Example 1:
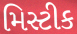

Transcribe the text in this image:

મિસ્ટીક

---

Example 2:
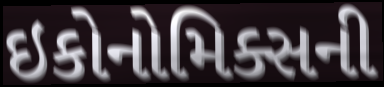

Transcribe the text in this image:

ઇકોનોમિક્સની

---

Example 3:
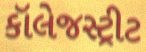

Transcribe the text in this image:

કૉલેજસ્ટ્રીટ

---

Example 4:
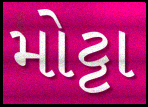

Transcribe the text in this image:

મોટ્ટા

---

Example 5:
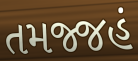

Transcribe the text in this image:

તમજ્જહં